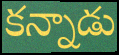
కన్నాడు